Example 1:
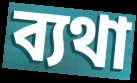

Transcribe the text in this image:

ব্যথা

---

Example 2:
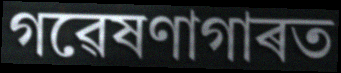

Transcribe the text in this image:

গৱেষণাগাৰত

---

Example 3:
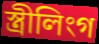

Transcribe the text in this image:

স্ত্ৰীলিংগ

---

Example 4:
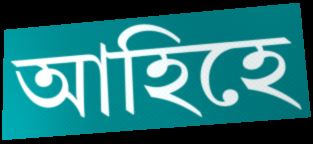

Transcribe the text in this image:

আহিহে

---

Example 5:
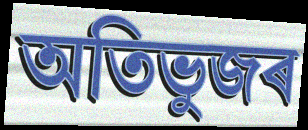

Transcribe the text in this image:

অতিভুজৰ